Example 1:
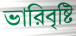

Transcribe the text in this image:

ভারিবৃষ্টি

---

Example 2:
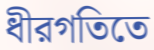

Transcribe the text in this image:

ধীরগতিতে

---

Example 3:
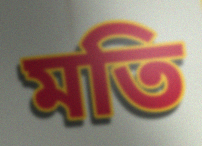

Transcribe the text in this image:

মতি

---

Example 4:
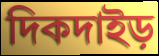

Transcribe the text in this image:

দিকদাইড়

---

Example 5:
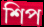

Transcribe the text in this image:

শিপ